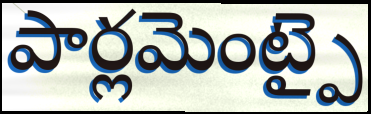
పార్లమెంట్పై